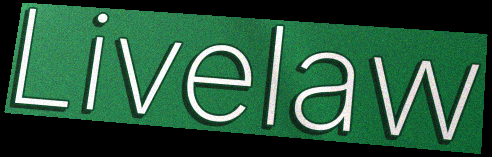
Livelaw